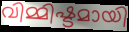
വിമ്മിഷ്ടമായി